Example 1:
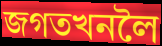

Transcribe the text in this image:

জগতখনলৈ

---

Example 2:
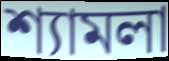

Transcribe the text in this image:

শ্যামলা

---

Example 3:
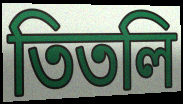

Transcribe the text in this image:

তিতলি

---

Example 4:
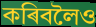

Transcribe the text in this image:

কৰিবলৈও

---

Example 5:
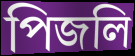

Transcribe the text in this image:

পিজলি